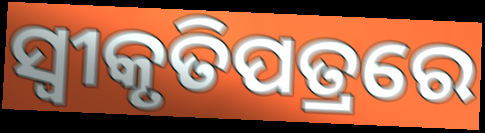
ସ୍ୱୀକୃତିପତ୍ରରେ